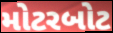
મોટરબોટ